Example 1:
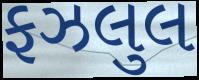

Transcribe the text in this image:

ફઝલુલ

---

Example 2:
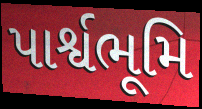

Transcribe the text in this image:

પાર્શ્વભૂમિ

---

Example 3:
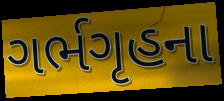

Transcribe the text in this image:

ગર્ભગૃહના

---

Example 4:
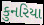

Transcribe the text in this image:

કુનરિયા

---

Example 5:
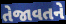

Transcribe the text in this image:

તેજાવતને